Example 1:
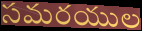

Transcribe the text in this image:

సమరయుల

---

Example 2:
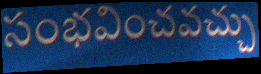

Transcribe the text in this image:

సంభవించవచ్చు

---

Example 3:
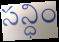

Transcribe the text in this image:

సన్ధిం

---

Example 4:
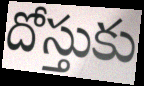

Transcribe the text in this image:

దోస్తుకు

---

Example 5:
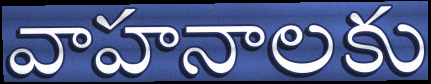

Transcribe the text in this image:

వాహనాలకు